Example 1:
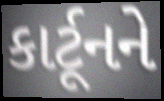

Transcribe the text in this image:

કાર્ટૂનને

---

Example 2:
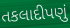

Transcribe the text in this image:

તકલાદીપણું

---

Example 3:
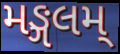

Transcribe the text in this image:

મઙ્ગલમ્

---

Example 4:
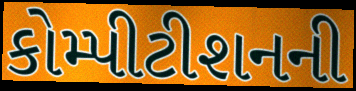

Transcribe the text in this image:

કોમ્પીટીશનની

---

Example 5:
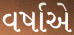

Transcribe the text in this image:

વર્ષાએ